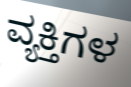
ವ್ಯಕ್ತಿಗಳ